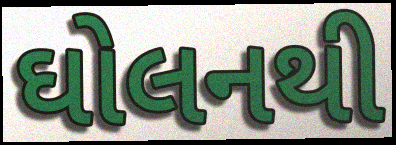
ઘોલનથી